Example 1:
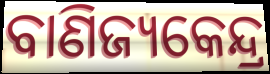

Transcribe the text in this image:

ବାଣିଜ୍ୟକେନ୍ଦ୍ର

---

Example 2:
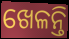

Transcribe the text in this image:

ଖେଳନ୍ତି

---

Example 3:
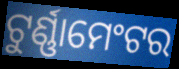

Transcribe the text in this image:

ଟୁର୍ଣ୍ଣାମେଂଟର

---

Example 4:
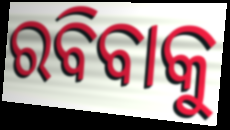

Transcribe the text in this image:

ରବିବାକୁ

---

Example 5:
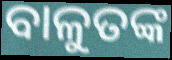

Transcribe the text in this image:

ବାଳୁତଙ୍କ